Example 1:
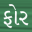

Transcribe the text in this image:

ફોર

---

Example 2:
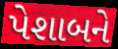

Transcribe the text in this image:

પેશાબને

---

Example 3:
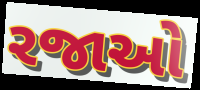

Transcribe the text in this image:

રજાઓ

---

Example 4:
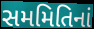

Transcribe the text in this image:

સમમિતિનાં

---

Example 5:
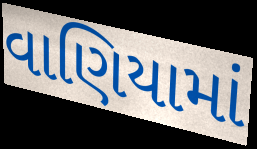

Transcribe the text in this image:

વાણિયામાં